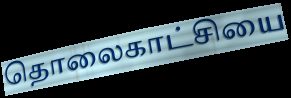
தொலைகாட்சியை